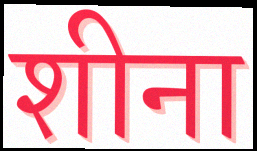
शीना